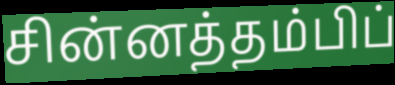
சின்னத்தம்பிப்